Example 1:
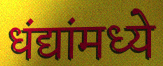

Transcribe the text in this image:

धंद्यांमध्ये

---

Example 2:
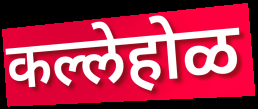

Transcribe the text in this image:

कल्लेहोळ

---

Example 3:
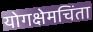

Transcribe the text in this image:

योगक्षेमचिंता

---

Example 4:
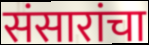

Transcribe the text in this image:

संसारांचा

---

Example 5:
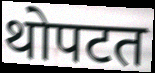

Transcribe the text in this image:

थोपटत